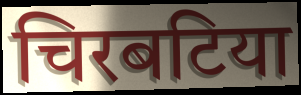
चिरबटिया